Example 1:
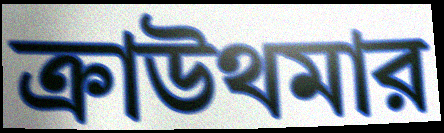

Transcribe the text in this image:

ক্রাউথমার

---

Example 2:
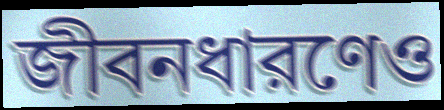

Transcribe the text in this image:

জীবনধারণেও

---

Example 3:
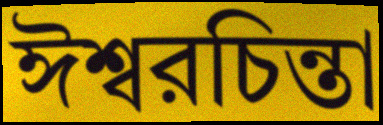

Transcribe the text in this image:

ঈশ্বরচিন্তা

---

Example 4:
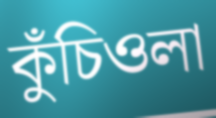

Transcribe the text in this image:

কুঁচিওলা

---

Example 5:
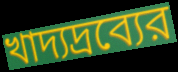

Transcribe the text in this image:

খাদ্যদ্রব্যের